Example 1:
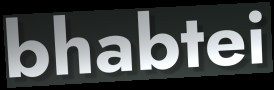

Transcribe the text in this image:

bhabtei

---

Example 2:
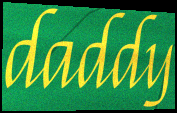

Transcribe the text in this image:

daddy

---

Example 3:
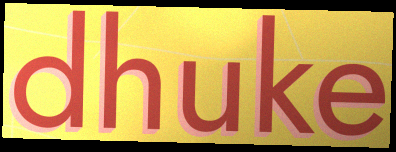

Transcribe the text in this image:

dhuke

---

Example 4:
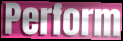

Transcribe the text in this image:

Perform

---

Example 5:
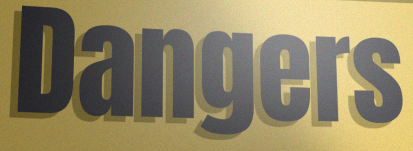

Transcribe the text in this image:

Dangers